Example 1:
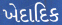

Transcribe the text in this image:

ખેદાદિક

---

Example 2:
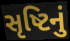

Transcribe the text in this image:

સૃષ્ટિનું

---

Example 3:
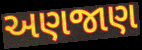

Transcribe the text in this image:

અણજાણ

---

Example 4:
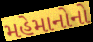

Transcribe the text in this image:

મહેમાનોનો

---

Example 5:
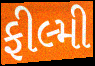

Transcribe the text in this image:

ફીલ્મી